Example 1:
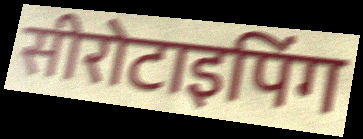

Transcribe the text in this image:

सीरोटाइपिंग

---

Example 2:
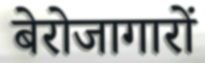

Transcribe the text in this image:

बेरोजागारों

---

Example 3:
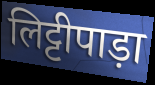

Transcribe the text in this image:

लिट्टीपाड़ा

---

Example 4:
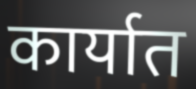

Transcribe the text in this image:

कार्यात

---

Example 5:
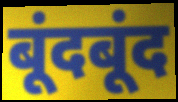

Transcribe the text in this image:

बूंदबूंद